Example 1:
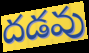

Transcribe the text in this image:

దడవు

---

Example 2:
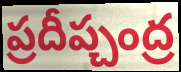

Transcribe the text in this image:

ప్రదీప్చంద్ర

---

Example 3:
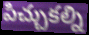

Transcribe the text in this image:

పిచ్చుకల్ని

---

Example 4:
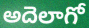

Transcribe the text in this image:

అదెలాగో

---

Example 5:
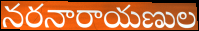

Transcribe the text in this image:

నరనారాయణుల